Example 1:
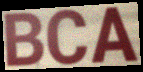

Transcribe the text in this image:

BCA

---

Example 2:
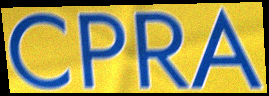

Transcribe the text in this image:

CPRA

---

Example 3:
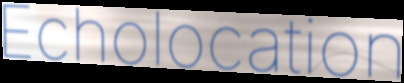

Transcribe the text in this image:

Echolocation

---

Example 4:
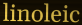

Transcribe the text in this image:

linoleic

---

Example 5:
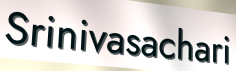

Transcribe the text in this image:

Srinivasachari